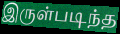
இருள்படிந்த